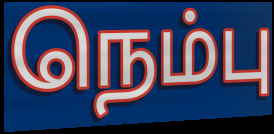
நெம்பு